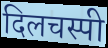
दिलचस्पी